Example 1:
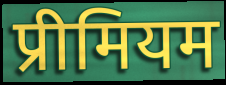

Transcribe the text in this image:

प्रीमियम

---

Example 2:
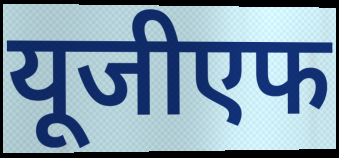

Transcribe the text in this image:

यूजीएफ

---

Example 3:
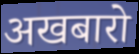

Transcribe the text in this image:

अखबारो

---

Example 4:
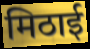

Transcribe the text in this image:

मिठाई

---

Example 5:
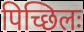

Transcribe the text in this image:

पिच्छिलः